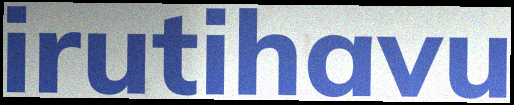
irutihavu